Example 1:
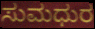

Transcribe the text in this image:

ಸುಮಧುರ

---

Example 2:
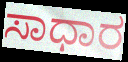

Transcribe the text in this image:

ಸಾಧಾರ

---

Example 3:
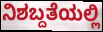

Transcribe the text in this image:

ನಿಶಬ್ದತೆಯಲ್ಲಿ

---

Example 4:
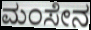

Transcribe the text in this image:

ಮಂಸೇನ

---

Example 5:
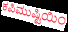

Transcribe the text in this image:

ಕಪಿಮುಷ್ಟಿಯಿಂ